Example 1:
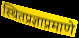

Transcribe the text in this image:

स्थितप्रज्ञाप्रमाणे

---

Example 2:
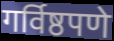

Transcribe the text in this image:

गर्विष्ठपणे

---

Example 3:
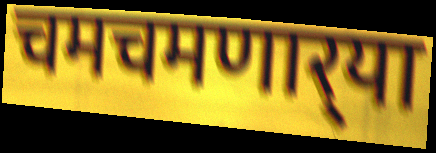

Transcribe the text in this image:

चमचमणार्‍या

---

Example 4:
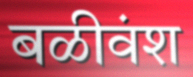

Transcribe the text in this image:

बळीवंश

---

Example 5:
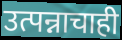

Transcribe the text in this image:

उत्पन्नाचाही